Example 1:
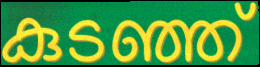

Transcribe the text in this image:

കുടഞ്ഞ്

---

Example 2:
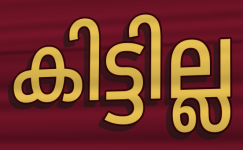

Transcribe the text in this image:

കിട്ടില്ല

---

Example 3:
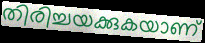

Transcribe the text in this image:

തിരിച്ചയക്കുകയാണ്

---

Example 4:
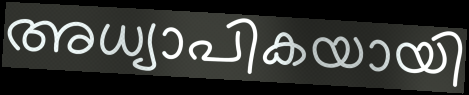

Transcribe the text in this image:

അധ്യാപികയായി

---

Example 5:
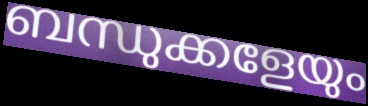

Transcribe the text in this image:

ബന്ധുക്കളേയും